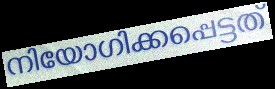
നിയോഗിക്കപ്പെട്ടത്